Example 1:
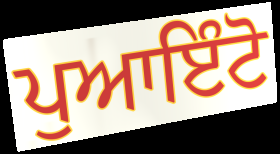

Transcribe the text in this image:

ਪੁਆਇੰਟੋ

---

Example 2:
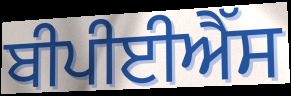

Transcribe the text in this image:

ਬੀਪੀਈਐੱਸ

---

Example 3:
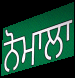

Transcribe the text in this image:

ਨੋਮਾਲਾ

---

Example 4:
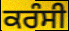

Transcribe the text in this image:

ਕਰੰਸੀ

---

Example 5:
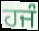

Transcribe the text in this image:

ਹਜੰ